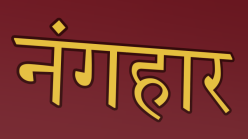
नंगहार